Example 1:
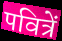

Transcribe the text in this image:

पवित्रें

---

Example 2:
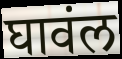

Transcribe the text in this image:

घावंल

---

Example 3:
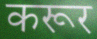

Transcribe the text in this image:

करूर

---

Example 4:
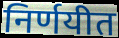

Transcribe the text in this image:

निर्णयीत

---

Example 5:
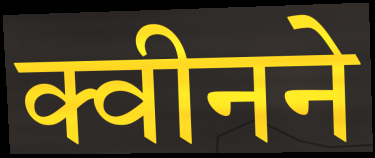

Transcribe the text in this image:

क्वीनने